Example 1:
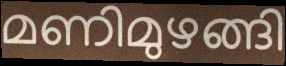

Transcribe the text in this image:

മണിമുഴങ്ങി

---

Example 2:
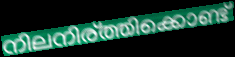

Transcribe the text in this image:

നിലനിര്ത്തിക്കൊണ്ട്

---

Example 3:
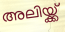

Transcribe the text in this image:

അലിയ്ക്ക്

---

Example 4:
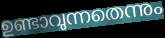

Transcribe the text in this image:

ഉണ്ടാവുന്നതെന്നും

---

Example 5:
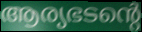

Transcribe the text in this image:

ആര്യഭടന്റെ